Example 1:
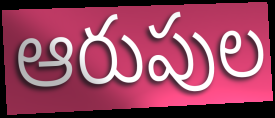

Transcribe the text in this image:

ఆరుపుల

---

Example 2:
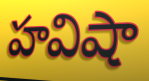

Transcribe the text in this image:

హవిషా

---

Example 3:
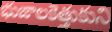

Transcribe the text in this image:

భుజాలకెత్తుకుని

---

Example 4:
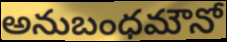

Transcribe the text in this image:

అనుబంధమౌనో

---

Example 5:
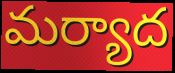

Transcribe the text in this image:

మర్యాద